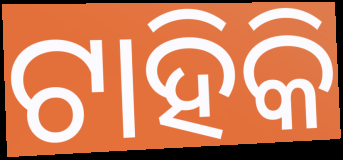
ଟାହିକି